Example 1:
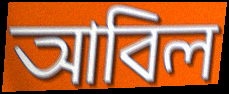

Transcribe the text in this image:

আবিল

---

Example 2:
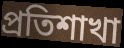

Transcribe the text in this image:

প্রতিশাখা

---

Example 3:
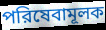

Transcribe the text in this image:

পরিষেবামূলক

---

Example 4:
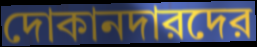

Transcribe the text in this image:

দোকানদারদের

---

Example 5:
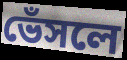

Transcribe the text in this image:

ভেঁসলে